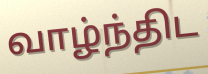
வாழ்ந்திட